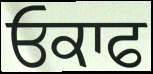
ਓਕਾਫ